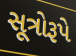
સૂત્રોરૂપે